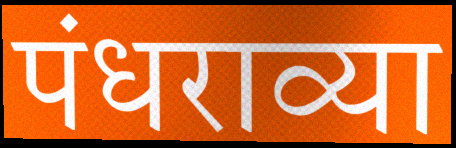
पंधराव्या